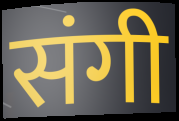
संगी